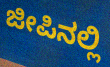
ಜೀಪಿನಲ್ಲಿ